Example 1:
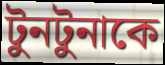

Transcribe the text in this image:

টুনটুনাকে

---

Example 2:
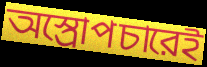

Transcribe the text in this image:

অস্ত্রোপচারেই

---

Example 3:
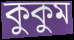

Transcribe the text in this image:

কুকুম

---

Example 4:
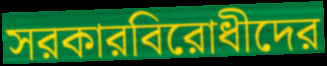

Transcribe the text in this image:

সরকারবিরোধীদের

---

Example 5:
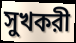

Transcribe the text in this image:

সুখকরী